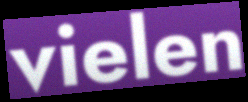
vielen